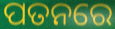
ପତନରେ